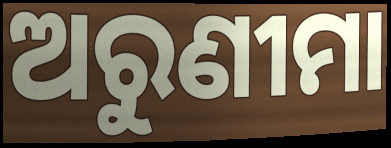
ଅରୁଣୀମା